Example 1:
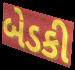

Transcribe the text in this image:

બેડકી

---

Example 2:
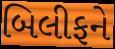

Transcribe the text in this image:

બિલીફને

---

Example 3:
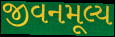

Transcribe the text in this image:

જીવનમૂલ્ય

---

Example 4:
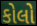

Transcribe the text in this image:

કોલો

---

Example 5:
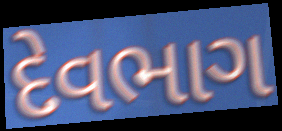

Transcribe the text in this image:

દેવભાગ